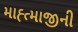
માહ્ત્માજીની